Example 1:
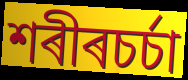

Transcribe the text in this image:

শৰীৰচৰ্চা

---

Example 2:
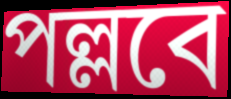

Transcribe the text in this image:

পল্লবে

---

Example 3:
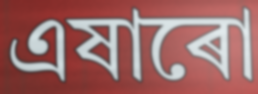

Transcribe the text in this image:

এষাৰো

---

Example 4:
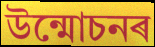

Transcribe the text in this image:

উন্মোচনৰ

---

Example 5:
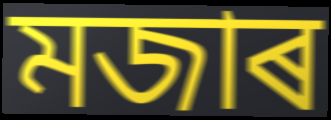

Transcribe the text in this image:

মজাৰ